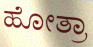
ಹೋತ್ರಾ